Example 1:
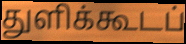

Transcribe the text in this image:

துளிக்கூடப்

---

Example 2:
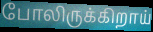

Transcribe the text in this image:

போலிருக்கிறாய்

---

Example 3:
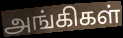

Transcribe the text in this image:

அங்கிகள்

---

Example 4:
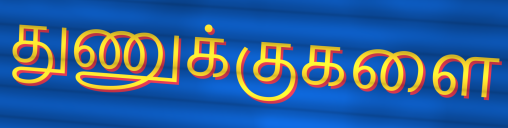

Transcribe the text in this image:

துணுக்குகளை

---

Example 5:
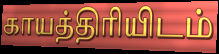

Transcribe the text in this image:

காயத்திரியிடம்